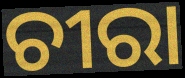
ଚୀରା